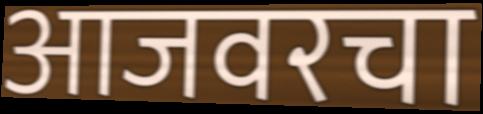
आजवरचा